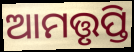
ଆମତ୍ତୃପ୍ତି